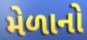
મેળાનો